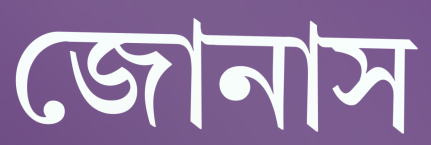
জোনাস